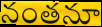
నంతనూ